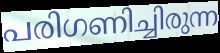
പരിഗണിച്ചിരുന്ന